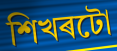
শিখৰটো